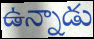
ఉన్నాడు